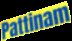
Pattinam